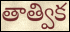
తాత్విక